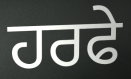
ਹਰਫੇ